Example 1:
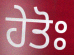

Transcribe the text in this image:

ਹੇਤੋਃ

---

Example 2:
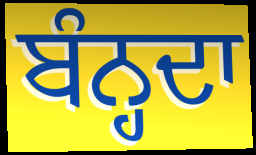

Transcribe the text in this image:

ਬੰਨ੍ਹਦਾ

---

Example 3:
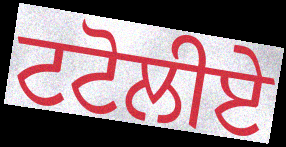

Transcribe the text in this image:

ਟਟੋਲੀਏ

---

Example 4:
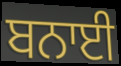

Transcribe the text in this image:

ਬਨਾਈ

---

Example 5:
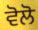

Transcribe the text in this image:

ਵੋਲੋ